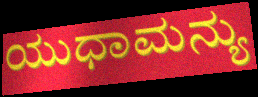
ಯುಧಾಮನ್ಯು